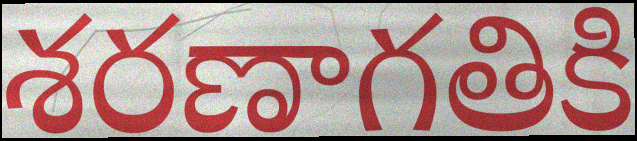
శరణాగతికి